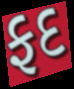
ફદ